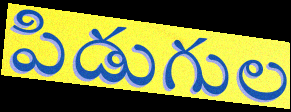
పిడుగుల